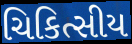
ચિકિત્સીય